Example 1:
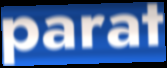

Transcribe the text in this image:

parat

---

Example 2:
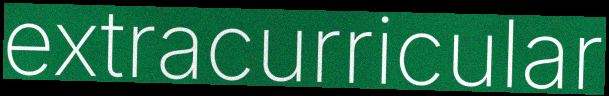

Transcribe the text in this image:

extracurricular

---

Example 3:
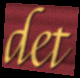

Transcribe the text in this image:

det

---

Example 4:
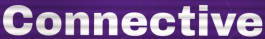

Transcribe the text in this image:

Connective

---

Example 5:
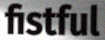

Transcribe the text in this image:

fistful